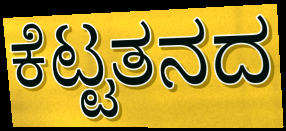
ಕೆಟ್ಟತನದ